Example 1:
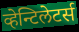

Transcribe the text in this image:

व्हेन्टिलेटर्स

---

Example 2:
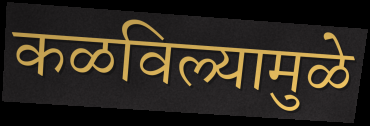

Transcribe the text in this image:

कळविल्यामुळे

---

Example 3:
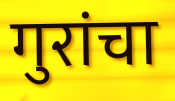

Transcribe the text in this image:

गुरांचा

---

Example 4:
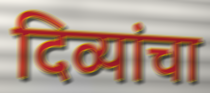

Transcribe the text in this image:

दिव्यांचा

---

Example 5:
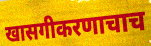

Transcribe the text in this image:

खासगीकरणाचाच